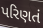
પરિણતં